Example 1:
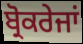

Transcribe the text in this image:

ਬ੍ਰੋਕਰੇਜਾਂ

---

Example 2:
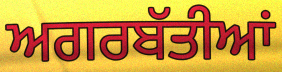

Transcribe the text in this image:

ਅਗਰਬੱਤੀਆਂ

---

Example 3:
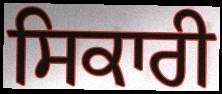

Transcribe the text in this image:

ਸਿਕਾਰੀ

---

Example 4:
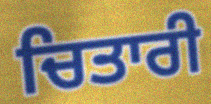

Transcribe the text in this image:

ਚਿਤਾਰੀ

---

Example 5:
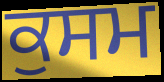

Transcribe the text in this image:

ਕੁਸਮ